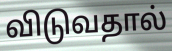
விடுவதால்